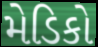
મેડિકો